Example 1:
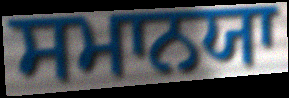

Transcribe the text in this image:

ਸਮਾਨਯਾ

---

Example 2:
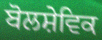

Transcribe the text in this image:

ਬੋਲਸ਼ੇਵਿਕ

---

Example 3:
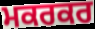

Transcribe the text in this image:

ਮਕਰਕਰ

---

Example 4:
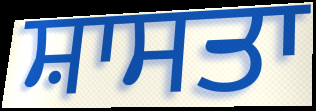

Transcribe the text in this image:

ਸ਼ਾਸਤਾ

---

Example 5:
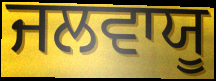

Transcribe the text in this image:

ਜਲਵਾਯੂ